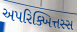
અપરિક્ખિત્તસ્સ